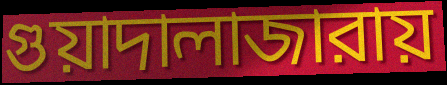
গুয়াদালাজারায়